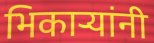
भिकाऱ्यांनी